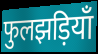
फुलझड़ियाँ